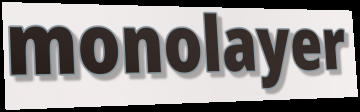
monolayer